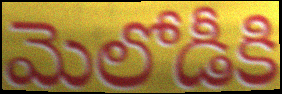
మెలోడీకి